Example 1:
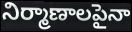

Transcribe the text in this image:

నిర్మాణాలపైనా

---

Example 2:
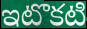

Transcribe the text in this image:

ఇటొకటి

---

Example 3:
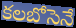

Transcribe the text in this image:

కలబోసెనే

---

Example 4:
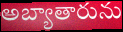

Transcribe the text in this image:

అబ్యాతారును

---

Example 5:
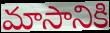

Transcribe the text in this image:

మాసానికి